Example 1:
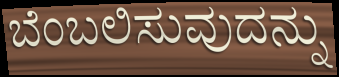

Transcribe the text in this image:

ಬೆಂಬಲಿಸುವುದನ್ನು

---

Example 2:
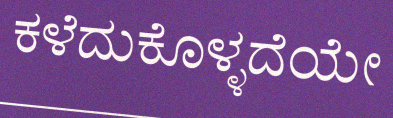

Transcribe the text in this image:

ಕಳೆದುಕೊಳ್ಳದೆಯೇ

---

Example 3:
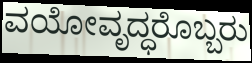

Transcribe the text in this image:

ವಯೋವೃದ್ಧರೊಬ್ಬರು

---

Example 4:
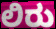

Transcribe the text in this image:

ಲಿರು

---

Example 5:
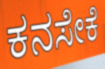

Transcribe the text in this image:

ಕನಸೇಕೆ